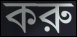
করু